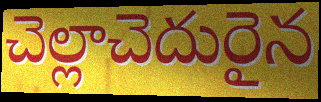
చెల్లాచెదురైన